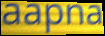
aapna